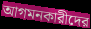
আগমনকারীদের